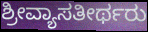
ಶ್ರೀವ್ಯಾಸತೀರ್ಥರು